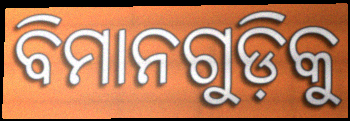
ବିମାନଗୁଡ଼ିକୁ